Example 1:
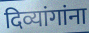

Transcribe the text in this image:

दिव्यांगांना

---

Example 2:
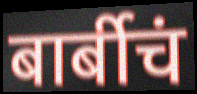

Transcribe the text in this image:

बार्बीचं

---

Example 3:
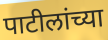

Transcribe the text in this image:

पाटीलांच्या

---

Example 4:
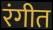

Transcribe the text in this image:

रंगीत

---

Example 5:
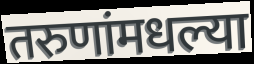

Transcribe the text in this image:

तरुणांमधल्या